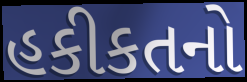
હકીકતનો